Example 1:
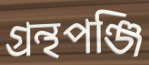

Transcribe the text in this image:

গ্রন্থপঞ্জি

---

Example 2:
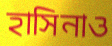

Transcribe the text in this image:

হাসিনাও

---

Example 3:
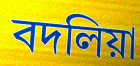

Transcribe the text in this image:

বদলিয়া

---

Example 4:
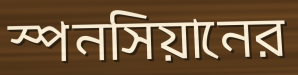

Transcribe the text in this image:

স্পনসিয়ানের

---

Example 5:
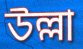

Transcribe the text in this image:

উল্লা